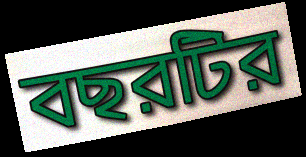
বছরটির